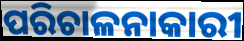
ପରିଚାଳନାକାରୀ